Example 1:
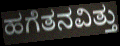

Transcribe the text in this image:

ಹಗೆತನವಿತ್ತು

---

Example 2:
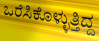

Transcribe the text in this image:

ಒರೆಸಿಕೊಳ್ಳುತ್ತಿದ್ದ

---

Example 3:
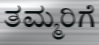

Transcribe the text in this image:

ತಮ್ಮರಿಗೆ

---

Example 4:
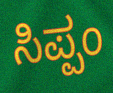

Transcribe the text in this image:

ಸಿಪ್ಪಂ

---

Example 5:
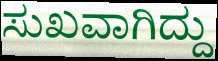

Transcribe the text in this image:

ಸುಖವಾಗಿದ್ದು